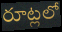
రూట్లలో